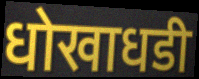
धोखाधडी